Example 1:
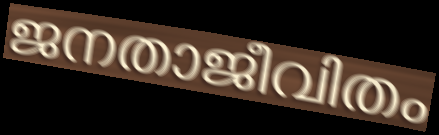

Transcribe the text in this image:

ജനതാജീവിതം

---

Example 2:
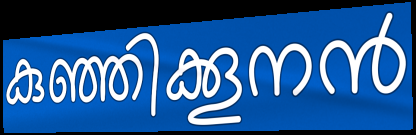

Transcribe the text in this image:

കുഞ്ഞിക്കൂനൻ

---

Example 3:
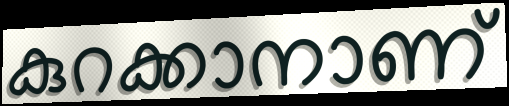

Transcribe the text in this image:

കുറക്കാനാണ്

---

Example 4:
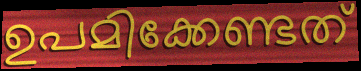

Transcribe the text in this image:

ഉപമിക്കേണ്ടത്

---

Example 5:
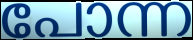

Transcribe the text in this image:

പോന്ന